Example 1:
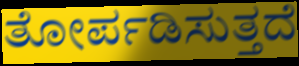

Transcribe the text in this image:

ತೋರ್ಪಡಿಸುತ್ತದೆ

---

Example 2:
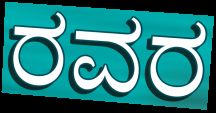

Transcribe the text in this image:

ರವರ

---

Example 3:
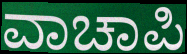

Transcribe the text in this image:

ವಾಚಾಪಿ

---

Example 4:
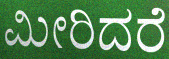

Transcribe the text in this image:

ಮೀರಿದರೆ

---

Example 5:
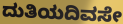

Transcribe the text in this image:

ದುತಿಯದಿವಸೇ